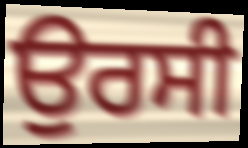
ਉਰਸੀ